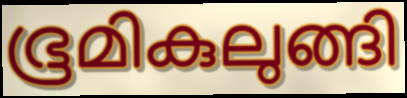
ഭൂമികുലുങ്ങി